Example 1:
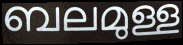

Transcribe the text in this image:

ബലമുള്ള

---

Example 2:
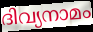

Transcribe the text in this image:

ദിവ്യനാമം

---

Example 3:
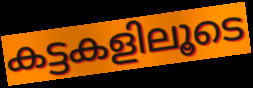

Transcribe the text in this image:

കട്ടകളിലൂടെ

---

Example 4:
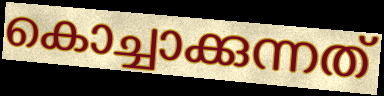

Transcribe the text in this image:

കൊച്ചാക്കുന്നത്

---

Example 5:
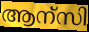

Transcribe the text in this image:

ആന്സി